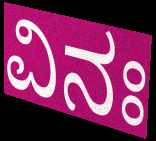
ವಿನಃ